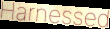
Harnessed